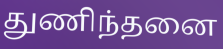
துணிந்தனை